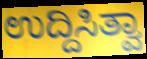
ಉದ್ದಿಸಿತ್ವಾ